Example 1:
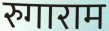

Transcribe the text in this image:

रुगाराम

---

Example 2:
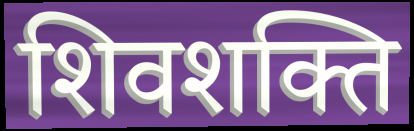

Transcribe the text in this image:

शिवशक्ति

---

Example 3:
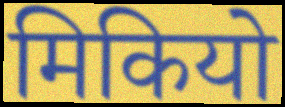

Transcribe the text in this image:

मिकियो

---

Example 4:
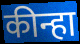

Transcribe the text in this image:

कीन्हा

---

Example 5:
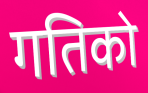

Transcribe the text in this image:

गतिको